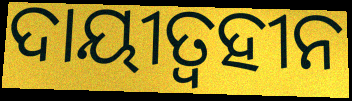
ଦାୟୀତ୍ୱହୀନ